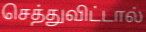
செத்துவிட்டால்